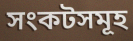
সংকটসমূহ